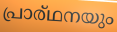
പ്രാര്ഥനയും